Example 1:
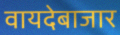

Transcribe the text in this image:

वायदेबाजार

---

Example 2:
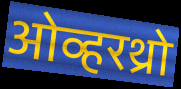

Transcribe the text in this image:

ओव्हरथ्रो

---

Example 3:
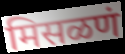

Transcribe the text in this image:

मिसळणं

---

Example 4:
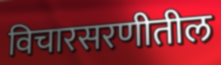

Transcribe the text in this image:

विचारसरणीतील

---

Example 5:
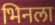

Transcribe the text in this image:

भिनला